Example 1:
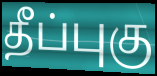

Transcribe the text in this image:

தீப்புகு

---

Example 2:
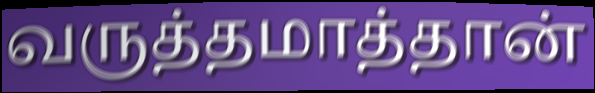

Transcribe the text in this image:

வருத்தமாத்தான்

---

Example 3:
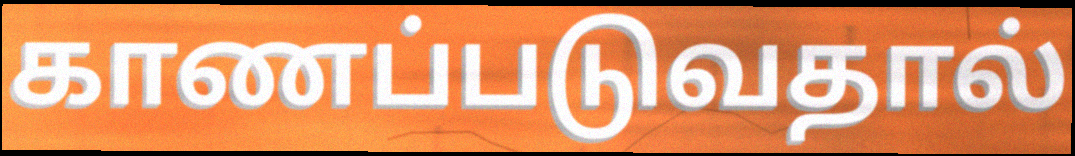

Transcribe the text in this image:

காணப்படுவதால்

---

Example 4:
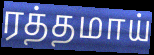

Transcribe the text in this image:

ரத்தமாய்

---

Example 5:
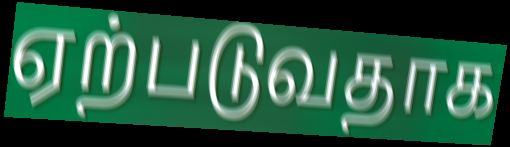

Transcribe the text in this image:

ஏற்படுவதாக